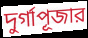
দুর্গাপূজার